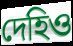
দেহিও